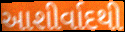
આશીર્વાદથી